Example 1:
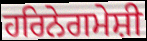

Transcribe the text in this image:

ਹਰਿਨੇਗਮੇਸ਼ੀ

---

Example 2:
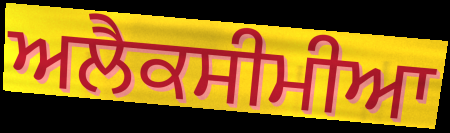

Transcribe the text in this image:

ਅਲੈਕਸੀਮੀਆ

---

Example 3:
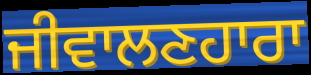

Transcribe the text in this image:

ਜੀਵਾਲਣਹਾਰਾ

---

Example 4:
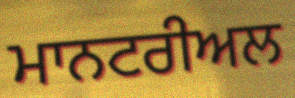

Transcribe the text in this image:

ਮਾਨਟਰੀਅਲ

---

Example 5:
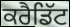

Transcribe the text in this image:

ਕਰੈਡਿੱਟ